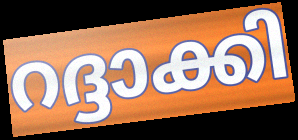
റദ്ദാക്കി